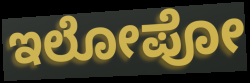
ಇಲೋಪೋ